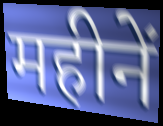
महीनें